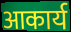
आकार्य